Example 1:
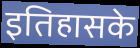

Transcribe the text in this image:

इतिहासके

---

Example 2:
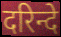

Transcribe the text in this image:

दरिन्दे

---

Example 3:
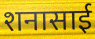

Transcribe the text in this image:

शनासाई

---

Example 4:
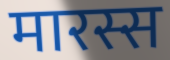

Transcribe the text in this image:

मारस्स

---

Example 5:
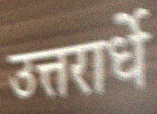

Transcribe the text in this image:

उत्तरार्धे